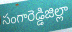
సంగారెడ్డిజిల్లా